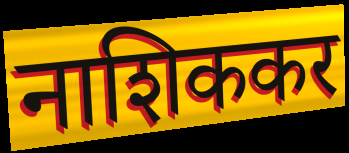
नाशिककर